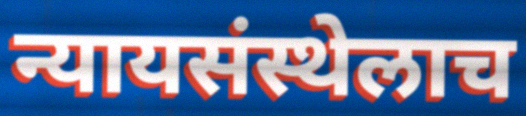
न्यायसंस्थेलाच